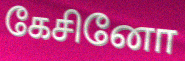
கேசினோ